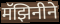
मॅझिनीने